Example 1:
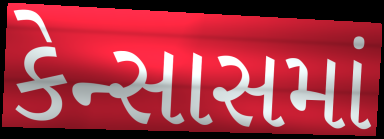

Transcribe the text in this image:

કેન્સાસમાં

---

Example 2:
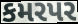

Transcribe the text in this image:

કમરપર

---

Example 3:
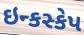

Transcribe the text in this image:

ઇન્કસ્કેપ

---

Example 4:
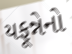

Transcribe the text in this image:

યફૂન્નેનો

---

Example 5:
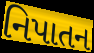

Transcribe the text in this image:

નિપાતન